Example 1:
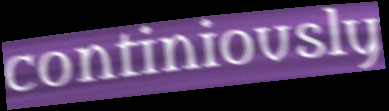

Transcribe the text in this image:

continiously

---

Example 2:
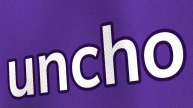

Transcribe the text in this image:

uncho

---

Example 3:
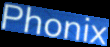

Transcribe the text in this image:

Phonix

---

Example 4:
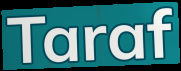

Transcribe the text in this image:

Taraf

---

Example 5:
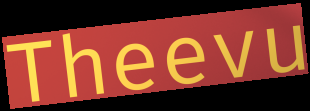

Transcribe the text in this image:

Theevu